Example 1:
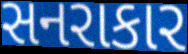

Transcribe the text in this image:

સનરાકાર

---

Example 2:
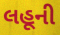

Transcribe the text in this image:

લહૂની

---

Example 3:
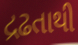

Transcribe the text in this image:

દ્રઢતાથી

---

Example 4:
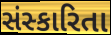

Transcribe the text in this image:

સંસ્કારિતા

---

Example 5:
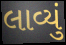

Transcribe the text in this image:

લાવ્યું